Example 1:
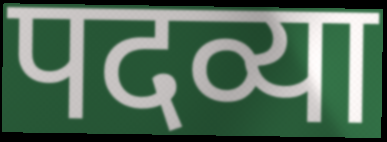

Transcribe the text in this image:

पदव्या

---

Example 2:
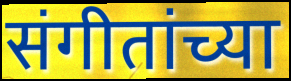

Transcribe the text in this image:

संगीतांच्या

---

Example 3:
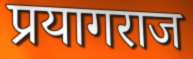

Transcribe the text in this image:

प्रयागराज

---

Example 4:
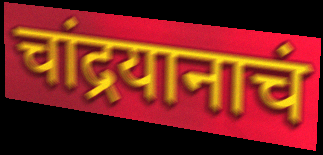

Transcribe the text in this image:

चांद्रयानाचं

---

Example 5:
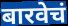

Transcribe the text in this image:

बारवेचं